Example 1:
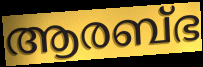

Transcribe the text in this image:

ആരബ്ഭ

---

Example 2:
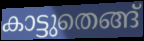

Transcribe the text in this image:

കാട്ടുതെങ്ങ്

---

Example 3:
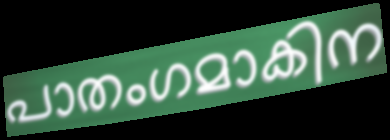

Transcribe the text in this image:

പാതംഗമാകിന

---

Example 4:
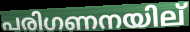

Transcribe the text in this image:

പരിഗണനയില്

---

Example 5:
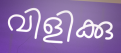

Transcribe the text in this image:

വിളിക്കു